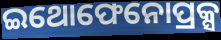
ଇଥୋଫେନୋପ୍ରକ୍ସ